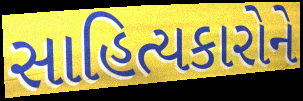
સાહિત્યકારોને